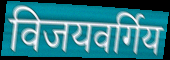
विजयवर्गिय